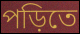
পড়িতে